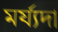
মৰ্য্যদা